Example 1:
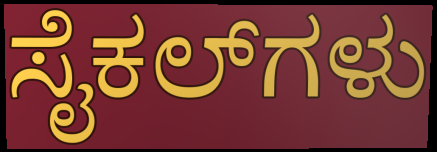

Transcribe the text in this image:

ಸೈಕಲ್‌ಗಳು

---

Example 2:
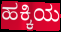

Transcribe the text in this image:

ಹಕ್ಕಿಯ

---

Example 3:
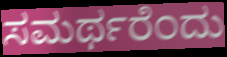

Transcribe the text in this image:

ಸಮರ್ಥರೆಂದು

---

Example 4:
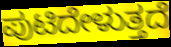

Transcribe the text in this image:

ಪುಟಿದೇಳುತ್ತದೆ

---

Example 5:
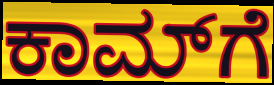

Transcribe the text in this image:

ಕಾಮ್‌ಗೆ